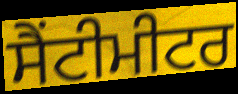
ਸੈਂਟੀਮੀਟਰ